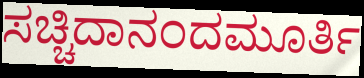
ಸಚ್ಚಿದಾನಂದಮೂರ್ತಿ